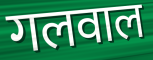
गलवाल